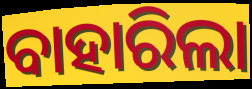
ବାହାରିଲା